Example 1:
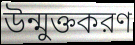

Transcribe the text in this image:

উন্মুক্তকরণ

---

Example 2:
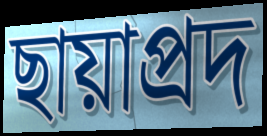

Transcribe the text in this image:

ছায়াপ্রদ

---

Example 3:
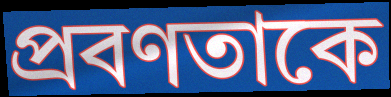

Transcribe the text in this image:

প্রবণতাকে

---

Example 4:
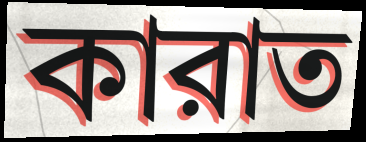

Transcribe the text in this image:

কারাত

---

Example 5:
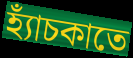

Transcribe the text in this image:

হ্যাঁচকাতে